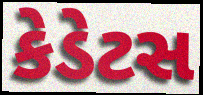
કેડેટસ